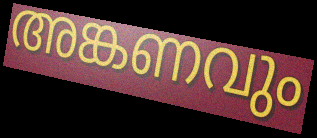
അങ്കണവും